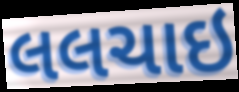
લલચાઇ